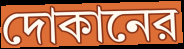
দোকানের